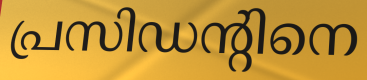
പ്രസിഡന്റിനെ